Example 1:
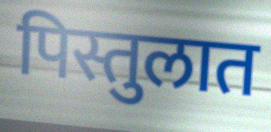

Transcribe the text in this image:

पिस्तुलात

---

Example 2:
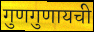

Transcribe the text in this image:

गुणगुणायची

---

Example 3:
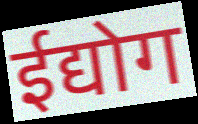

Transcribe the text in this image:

ईद्योग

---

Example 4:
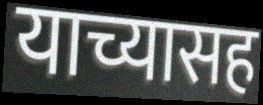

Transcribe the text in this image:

याच्यासह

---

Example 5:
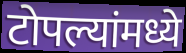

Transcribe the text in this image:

टोपल्यांमध्ये